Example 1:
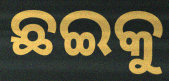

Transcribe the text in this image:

ଛଇକୁ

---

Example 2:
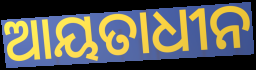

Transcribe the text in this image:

ଆୟତାଧୀନ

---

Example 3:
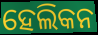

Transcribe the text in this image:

ହେଲିକନ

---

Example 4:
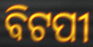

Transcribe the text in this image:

ବିଟପୀ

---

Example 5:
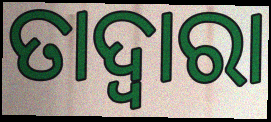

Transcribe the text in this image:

ତାଦ୍ଵାରା